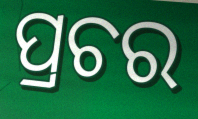
ପ୍ରଚର